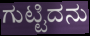
ಗುಟ್ಟಿದನು